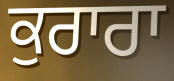
ਕੁਰਾਰਾ